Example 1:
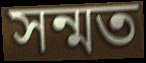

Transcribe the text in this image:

সন্মত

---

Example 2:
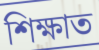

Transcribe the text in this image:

শিক্ষাত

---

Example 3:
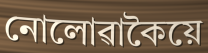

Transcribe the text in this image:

নোলোৱাকৈয়ে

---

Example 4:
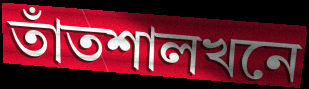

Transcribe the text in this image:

তাঁতশালখনে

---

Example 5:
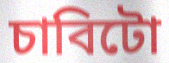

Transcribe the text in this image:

চাবিটো